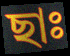
ছাঃ